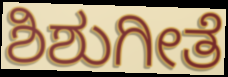
ಶಿಶುಗೀತೆ